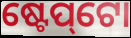
ଷ୍ଟେପ୍‌ଟୋ